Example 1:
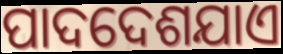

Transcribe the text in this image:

ପାଦଦେଶଯାଏ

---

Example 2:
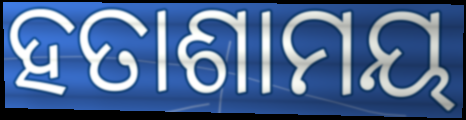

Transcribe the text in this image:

ହତାଶାମୟ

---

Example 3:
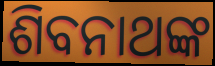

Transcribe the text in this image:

ଶିବନାଥଙ୍କ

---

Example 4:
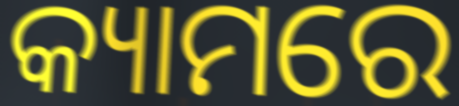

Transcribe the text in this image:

କ୍ୟାମରେ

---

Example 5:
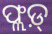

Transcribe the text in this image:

ଫ୍ଲଡ଼୍